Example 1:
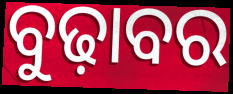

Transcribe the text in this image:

ବୁଢ଼ାବର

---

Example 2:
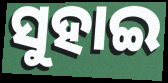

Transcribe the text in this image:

ସୁହାଇ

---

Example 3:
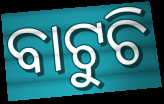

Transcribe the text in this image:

ବାଟୁଚି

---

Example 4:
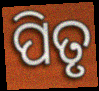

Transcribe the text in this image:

ପିତୃ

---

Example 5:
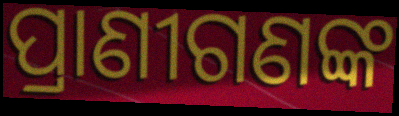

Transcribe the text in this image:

ପ୍ରାଣୀଗଣଙ୍କ